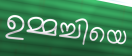
ഉമ്മച്ചിയെ